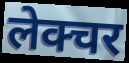
लेक्चर